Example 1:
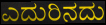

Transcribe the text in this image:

ಎದುರಿನದು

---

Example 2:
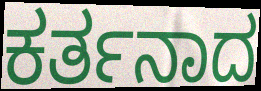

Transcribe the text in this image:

ಕರ್ತನಾದ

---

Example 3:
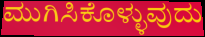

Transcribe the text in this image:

ಮುಗಿಸಿಕೊಳ್ಳುವುದು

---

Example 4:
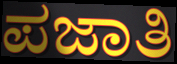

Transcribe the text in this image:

ಪಜಾತಿ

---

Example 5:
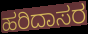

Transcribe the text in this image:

ಹರಿದಾಸರ